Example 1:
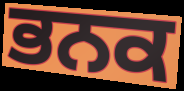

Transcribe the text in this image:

ਭਨਕ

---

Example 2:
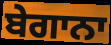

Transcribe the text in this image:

ਬੇਗਾਨਾ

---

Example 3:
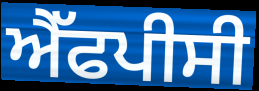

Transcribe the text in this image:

ਐੱਫਪੀਸੀ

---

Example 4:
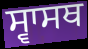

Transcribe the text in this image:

ਸ੍ਵਾਸਥ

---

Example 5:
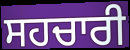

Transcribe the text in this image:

ਸਹਚਾਰੀ